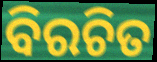
ବିରଚିତ